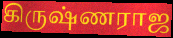
கிருஷ்ணராஜ